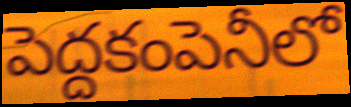
పెద్దకంపెనీలో